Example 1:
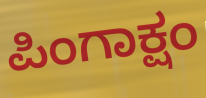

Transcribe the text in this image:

ಪಿಂಗಾಕ್ಷಂ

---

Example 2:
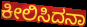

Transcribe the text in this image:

ಕೀಲಿಸಿದನಾ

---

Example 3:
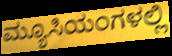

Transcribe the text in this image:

ಮ್ಯೂಸಿಯಂಗಳಲ್ಲಿ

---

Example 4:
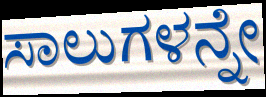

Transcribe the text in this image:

ಸಾಲುಗಳನ್ನೇ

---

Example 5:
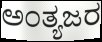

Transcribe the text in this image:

ಅಂತ್ಯಜರ